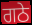
ਗਠੇ